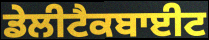
ਡੇਲੀਟੈਕਬਾਈਟ